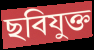
ছবিযুক্ত